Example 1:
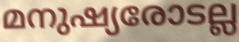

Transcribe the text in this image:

മനുഷ്യരോടല്ല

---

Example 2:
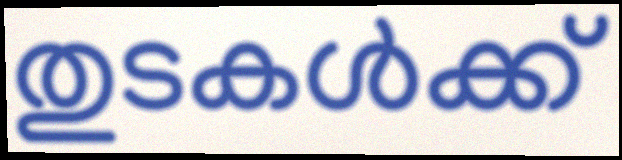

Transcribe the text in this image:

തുടകൾക്ക്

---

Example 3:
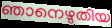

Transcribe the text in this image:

ഞാനെഴുതിയ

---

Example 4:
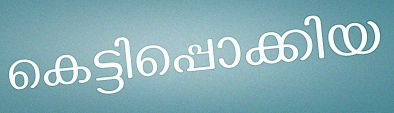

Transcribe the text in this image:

കെട്ടിപ്പൊക്കിയ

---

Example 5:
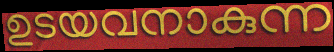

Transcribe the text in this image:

ഉടയവനാകുന്ന